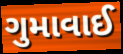
ગુમાવાઈ